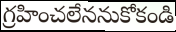
గ్రహించలేననుకోకండి